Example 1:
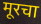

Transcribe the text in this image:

मूरचा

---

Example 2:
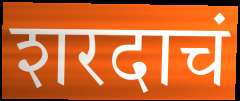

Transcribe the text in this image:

शरदाचं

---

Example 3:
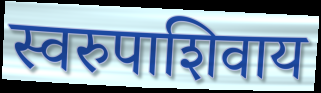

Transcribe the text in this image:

स्वरुपाशिवाय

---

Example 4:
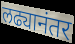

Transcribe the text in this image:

लढ्यानंतर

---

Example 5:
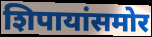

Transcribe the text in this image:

शिपायांसमोर